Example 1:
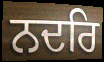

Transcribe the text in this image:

ਨਦਰਿ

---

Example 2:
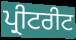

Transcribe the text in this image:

ਪ੍ਰੀਟਰੀਟ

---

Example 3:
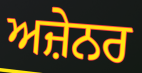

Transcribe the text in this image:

ਅਜ਼ੇਨਰ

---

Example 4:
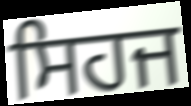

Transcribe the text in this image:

ਸਿਹਜ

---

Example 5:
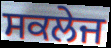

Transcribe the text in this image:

ਸਕਲੇਜ